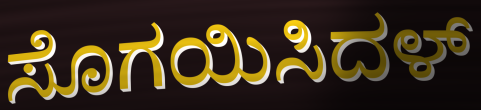
ಸೊಗಯಿಸಿದಳ್